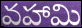
వహామి